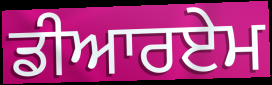
ਡੀਆਰਏਮ